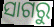
ସାଗରୁ